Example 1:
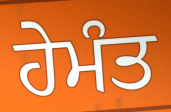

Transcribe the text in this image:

ਹੇਮੰਤ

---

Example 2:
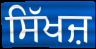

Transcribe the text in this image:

ਸਿੱਖਜ਼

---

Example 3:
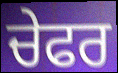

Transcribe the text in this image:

ਚੇਫਰ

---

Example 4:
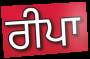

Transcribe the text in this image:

ਰੀਪਾ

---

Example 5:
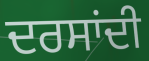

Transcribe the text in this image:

ਦਰਸਾਂਦੀ